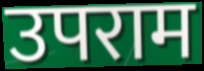
उपराम